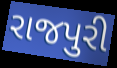
રાજપુરી